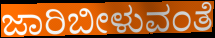
ಜಾರಿಬೀಳುವಂತೆ